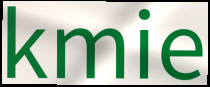
kmie